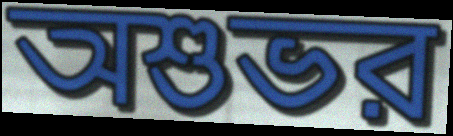
অশুভর